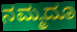
ನಮ್ಮದೂ